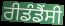
ਰੀਡੰਡੈਂਸੀ